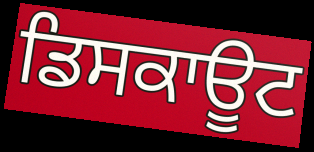
ਡਿਸਕਾਊਟ